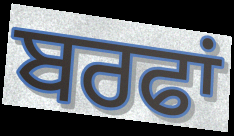
ਬਰਫਾਂ